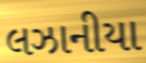
લઝાનીયા